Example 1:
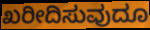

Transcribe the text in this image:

ಖರೀದಿಸುವುದೂ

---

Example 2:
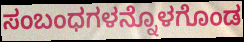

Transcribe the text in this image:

ಸಂಬಂಧಗಳನ್ನೊಳಗೊಂಡ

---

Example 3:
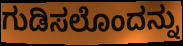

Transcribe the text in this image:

ಗುಡಿಸಲೊಂದನ್ನು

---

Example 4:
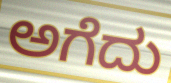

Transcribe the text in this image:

ಅಗೆದು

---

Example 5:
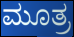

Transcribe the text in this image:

ಮೂತ್ರ